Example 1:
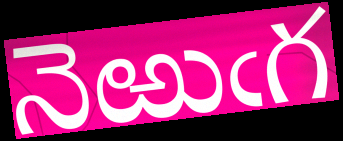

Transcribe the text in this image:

నెఱుఁగ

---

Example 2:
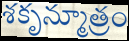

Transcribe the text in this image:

శకృన్మూత్రం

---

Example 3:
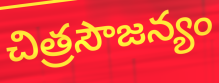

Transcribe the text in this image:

చిత్రసౌజన్యం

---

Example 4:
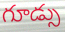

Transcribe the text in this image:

గూడ్సు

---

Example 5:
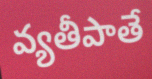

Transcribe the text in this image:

వ్యతీపాతే